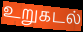
உறுகடல்